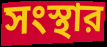
সংস্থার